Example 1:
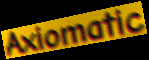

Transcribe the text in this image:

Axiomatic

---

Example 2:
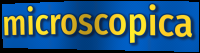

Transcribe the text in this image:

microscopica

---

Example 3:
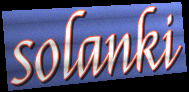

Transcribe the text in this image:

solanki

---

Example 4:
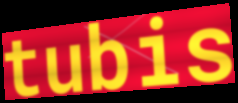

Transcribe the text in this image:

tubis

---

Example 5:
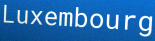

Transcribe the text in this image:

Luxembourg